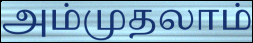
அம்முதலாம்